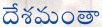
దేశమంతా